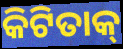
କିଟିତାକ୍